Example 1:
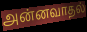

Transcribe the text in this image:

அன்னவாதல்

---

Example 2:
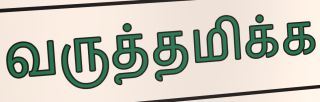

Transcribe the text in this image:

வருத்தமிக்க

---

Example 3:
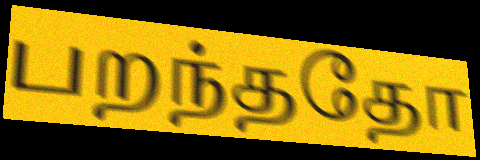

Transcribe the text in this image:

பறந்ததோ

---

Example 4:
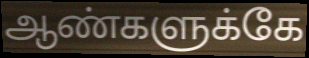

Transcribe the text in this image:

ஆண்களுக்கே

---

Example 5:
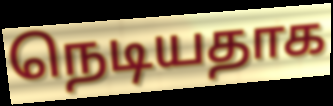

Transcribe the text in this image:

நெடியதாக